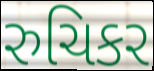
રુચિકર